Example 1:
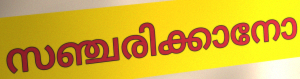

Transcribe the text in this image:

സഞ്ചരിക്കാനോ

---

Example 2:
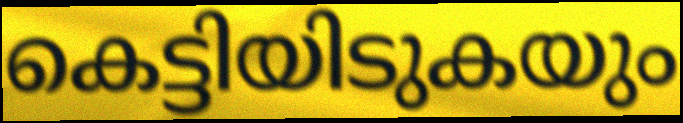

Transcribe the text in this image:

കെട്ടിയിടുകയും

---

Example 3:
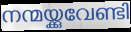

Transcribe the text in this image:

നന്മയ്ക്കുവേണ്ടി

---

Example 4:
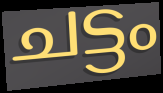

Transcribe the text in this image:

ചട്ടം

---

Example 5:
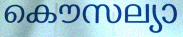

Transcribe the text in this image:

കൌസല്യാ